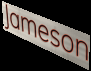
Jameson